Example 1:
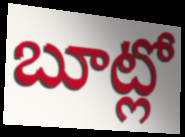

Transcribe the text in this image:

బూట్లో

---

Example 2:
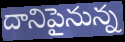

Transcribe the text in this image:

దానిపైనున్న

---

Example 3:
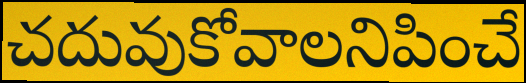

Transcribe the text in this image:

చదువుకోవాలనిపించే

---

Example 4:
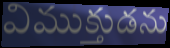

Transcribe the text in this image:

విముక్తుడను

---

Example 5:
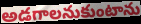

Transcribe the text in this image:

అడగాలనుకుంటాను